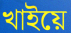
খাইয়ে